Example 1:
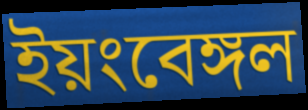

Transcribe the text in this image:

ইয়ংবেঙ্গল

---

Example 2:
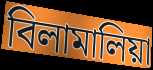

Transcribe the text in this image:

বিলামালিয়া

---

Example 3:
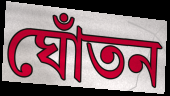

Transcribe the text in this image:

ঘোঁতন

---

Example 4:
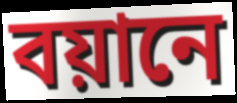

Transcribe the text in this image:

বয়ানে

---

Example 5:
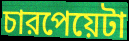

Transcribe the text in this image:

চারপেয়েটা